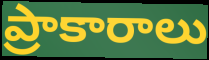
ప్రాకారాలు